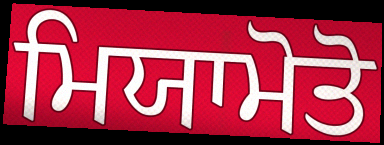
ਮਿਯਾਮੋਤੋ